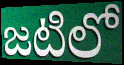
జటిలో